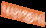
પણજીમાં